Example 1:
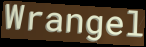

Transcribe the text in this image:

Wrangel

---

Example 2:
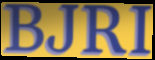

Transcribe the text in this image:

BJRI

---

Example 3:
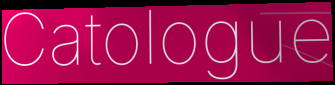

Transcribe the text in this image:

Catologue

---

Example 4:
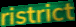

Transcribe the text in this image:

ristrict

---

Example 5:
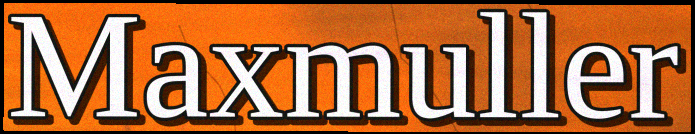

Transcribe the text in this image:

Maxmuller